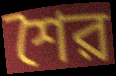
শৈৱ